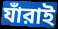
যাঁরাই